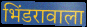
भिंडरावाला